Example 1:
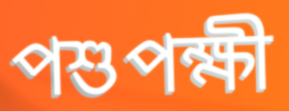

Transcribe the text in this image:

পশুপক্ষী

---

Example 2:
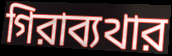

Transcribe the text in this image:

গিরাব্যথার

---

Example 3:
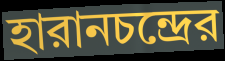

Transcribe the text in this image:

হারানচন্দ্রের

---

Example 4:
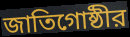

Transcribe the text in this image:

জাতিগোষ্ঠীর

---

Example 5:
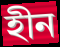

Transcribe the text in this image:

হীন